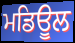
ਮਡਿਊਲ